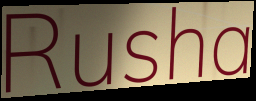
Rusha